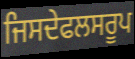
ਜਿਸਦੇਫਲਸਰੂਪ